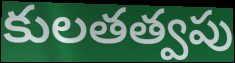
కులతత్వపు